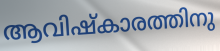
ആവിഷ്കാരത്തിനു